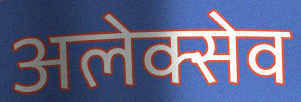
अलेक्सेव